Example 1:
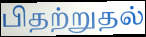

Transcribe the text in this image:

பிதற்றுதல்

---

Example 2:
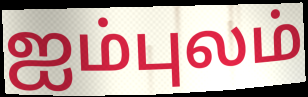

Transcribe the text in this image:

ஐம்புலம்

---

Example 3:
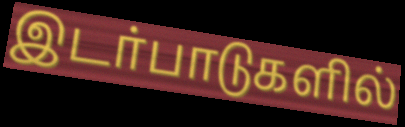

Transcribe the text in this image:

இடர்பாடுகளில்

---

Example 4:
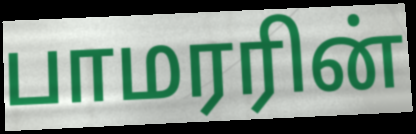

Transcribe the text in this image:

பாமரரின்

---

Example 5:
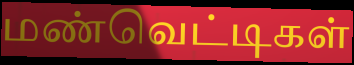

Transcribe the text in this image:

மண்வெட்டிகள்